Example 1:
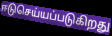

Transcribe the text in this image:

ஈடுசெய்யப்படுகிறது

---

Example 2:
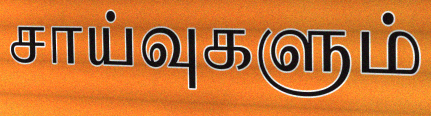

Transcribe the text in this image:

சாய்வுகளும்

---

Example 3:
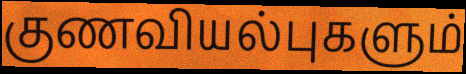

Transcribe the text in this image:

குணவியல்புகளும்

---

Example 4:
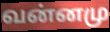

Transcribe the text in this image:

வன்னமு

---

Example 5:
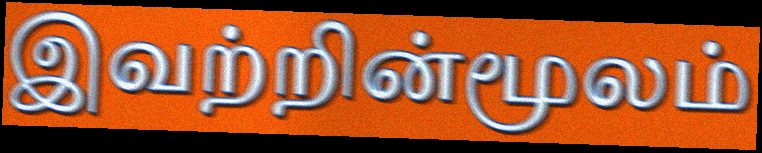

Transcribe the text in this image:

இவற்றின்மூலம்